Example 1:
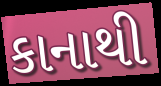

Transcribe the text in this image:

કાનાથી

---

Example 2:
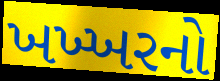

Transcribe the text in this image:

ખખ્ખરનો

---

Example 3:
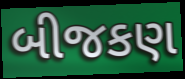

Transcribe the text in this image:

બીજકણ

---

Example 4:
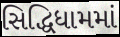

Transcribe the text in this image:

સિદ્ધિધામમાં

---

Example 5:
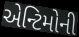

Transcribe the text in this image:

એન્ટિમોની